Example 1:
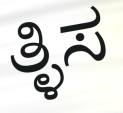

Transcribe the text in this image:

ತ್ಳಿಸ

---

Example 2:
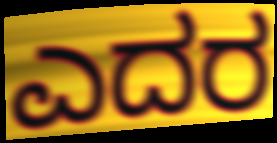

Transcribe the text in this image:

ಎದರ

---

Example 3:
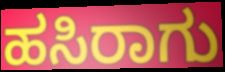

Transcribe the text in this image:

ಹಸಿರಾಗು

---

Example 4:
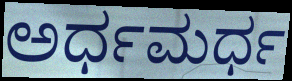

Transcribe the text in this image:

ಅರ್ಧಮರ್ಧ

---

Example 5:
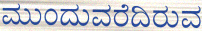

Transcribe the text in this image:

ಮುಂದುವರೆದಿರುವ